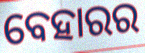
ବେହାରର